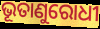
ଭୂତାଣୁରୋଧୀ